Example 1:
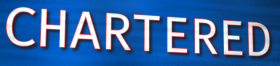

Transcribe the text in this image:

CHARTERED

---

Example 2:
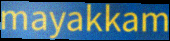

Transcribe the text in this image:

mayakkam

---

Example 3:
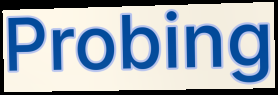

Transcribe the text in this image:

Probing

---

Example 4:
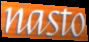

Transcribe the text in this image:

nasto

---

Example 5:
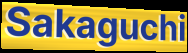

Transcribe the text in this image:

Sakaguchi